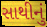
સાથીનું